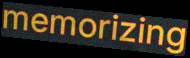
memorizing